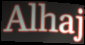
Alhaj